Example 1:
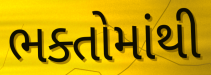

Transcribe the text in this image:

ભક્તોમાંથી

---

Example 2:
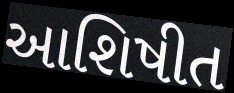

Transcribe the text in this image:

આશિષીત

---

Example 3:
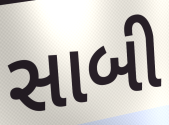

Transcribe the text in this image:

સાબી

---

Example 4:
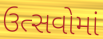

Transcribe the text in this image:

ઉત્સવોમાં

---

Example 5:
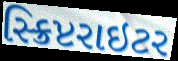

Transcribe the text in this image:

સ્ક્રિપ્ટરાઇટર